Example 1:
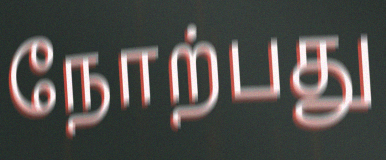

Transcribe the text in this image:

நோற்பது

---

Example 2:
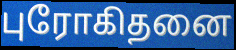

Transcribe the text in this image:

புரோகிதனை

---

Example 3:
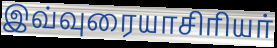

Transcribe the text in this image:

இவ்வுரையாசிரியர்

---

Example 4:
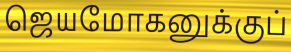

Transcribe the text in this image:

ஜெயமோகனுக்குப்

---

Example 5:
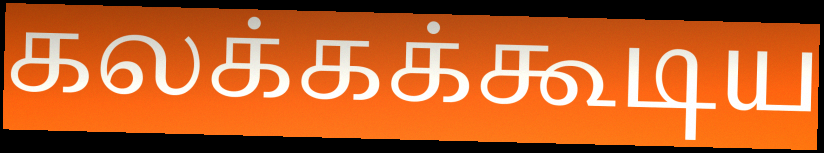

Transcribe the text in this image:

கலக்கக்கூடிய